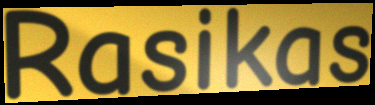
Rasikas